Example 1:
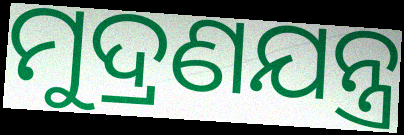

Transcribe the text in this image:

ମୁଦ୍ରଣଯନ୍ତ୍ର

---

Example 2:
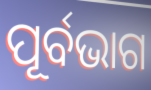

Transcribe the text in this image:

ପୂର୍ବଭାଗ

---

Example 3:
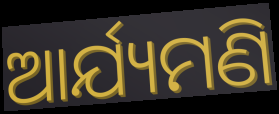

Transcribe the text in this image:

ଆର୍ଯ୍ୟମଣି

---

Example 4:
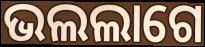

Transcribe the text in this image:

ଭଲଲାଗେ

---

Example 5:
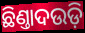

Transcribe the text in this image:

ଛିଣ୍ତାଦଉଡ଼ି